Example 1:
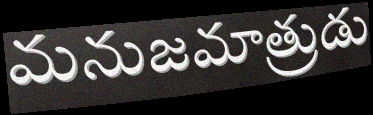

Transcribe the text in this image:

మనుజమాత్రుడు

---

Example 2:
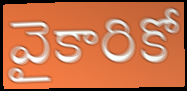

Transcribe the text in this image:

వైకారికో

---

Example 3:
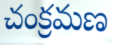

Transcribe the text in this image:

చంక్రమణ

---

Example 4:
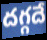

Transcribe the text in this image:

దగ్గదే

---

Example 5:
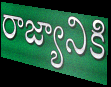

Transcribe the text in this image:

రాజ్యానికి